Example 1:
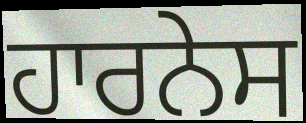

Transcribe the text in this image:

ਹਾਰਨੇਸ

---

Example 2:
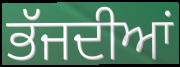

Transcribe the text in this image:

ਭੱਜਦੀਆਂ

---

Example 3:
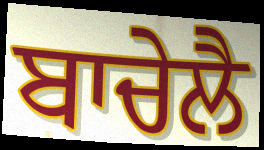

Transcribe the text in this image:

ਬਾਚੇਲੈ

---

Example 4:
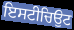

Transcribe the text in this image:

ਇਸਟੀਚਿਉਟ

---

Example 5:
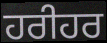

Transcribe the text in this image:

ਹਰੀਹਰ